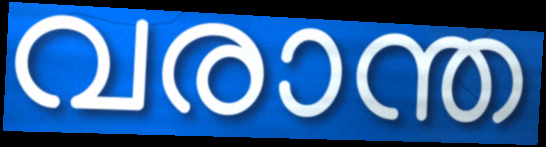
വരാന്ത